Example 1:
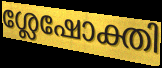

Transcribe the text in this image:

ശ്ലേഷോക്തി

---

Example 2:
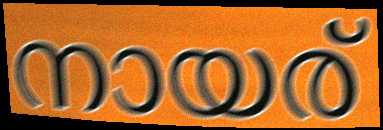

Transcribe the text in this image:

നായര്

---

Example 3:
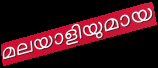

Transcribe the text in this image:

മലയാളിയുമായ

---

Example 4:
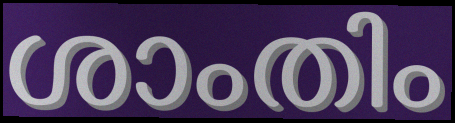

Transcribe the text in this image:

ശാംതിം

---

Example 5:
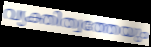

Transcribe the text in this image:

വ്യക്തിത്വത്തേയും